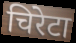
चिरेटा